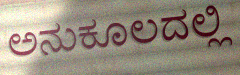
ಅನುಕೂಲದಲ್ಲಿ